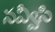
నవ్వీసి